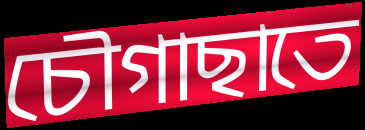
চৌগাছাতে